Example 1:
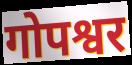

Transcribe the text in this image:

गोपश्वर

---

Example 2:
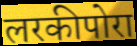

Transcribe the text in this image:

लरकीपोरा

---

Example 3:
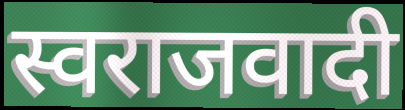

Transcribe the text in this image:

स्वराजवादी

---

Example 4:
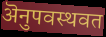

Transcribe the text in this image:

ऄनुपवस्थवत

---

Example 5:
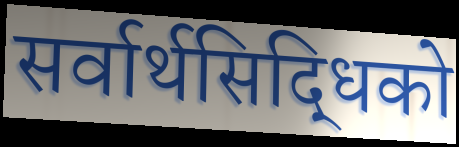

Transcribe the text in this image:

सर्वार्थसिद्धिको